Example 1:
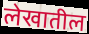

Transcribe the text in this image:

लेखातील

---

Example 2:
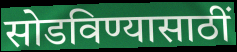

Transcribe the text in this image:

सोडविण्यासाठीं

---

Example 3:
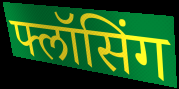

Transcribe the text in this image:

फ्लॉसिंग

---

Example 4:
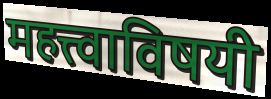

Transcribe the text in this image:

महत्त्वाविषयी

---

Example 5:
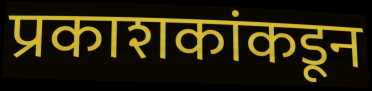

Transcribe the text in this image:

प्रकाशकांकडून